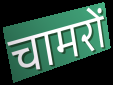
चामरों